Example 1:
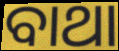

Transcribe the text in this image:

ବାଥା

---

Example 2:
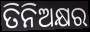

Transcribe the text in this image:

ତିନିଅକ୍ଷର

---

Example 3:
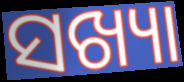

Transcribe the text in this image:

ସଖ୍ୟା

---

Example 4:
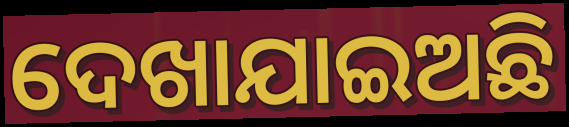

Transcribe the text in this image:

ଦେଖାଯାଇଅଛି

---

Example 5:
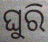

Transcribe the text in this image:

ଘୁରି